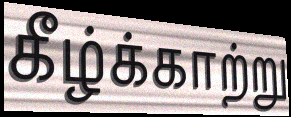
கீழ்க்காற்று